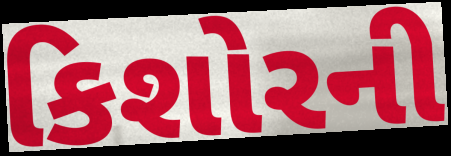
કિશોરની